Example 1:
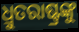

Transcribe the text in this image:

ଧ୍ରୁତରାଷ୍ଟ୍ରଙ୍କୁ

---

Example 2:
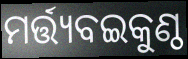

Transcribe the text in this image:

ମର୍ତ୍ତ୍ୟବଇକୁଣ୍ଠ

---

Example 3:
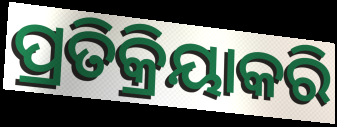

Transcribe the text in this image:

ପ୍ରତିକ୍ରିୟାକରି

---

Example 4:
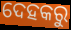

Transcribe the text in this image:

ଦେହକରୁ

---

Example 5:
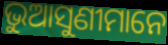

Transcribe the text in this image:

ଭୁଆସୁଣୀମାନେ